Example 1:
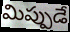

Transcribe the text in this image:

మిప్పుడే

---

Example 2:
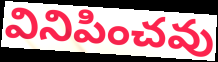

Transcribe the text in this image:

వినిపించవు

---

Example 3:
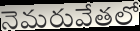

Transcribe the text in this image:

నెమరువేతలో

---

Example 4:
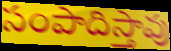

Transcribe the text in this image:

సంపాదిస్తావు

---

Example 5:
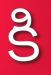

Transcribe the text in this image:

కి